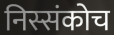
निस्संकोच